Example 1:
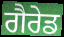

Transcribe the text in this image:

ਗੈਰੇਡ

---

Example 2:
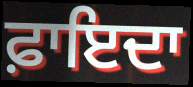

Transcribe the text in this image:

ਫ਼ਾਇਦਾ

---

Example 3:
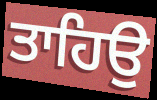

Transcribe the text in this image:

ਤਾਹਿਉ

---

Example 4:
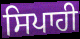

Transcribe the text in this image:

ਸਿਪਾਹੀ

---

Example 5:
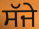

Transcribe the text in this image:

ਸੱਜੇ